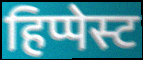
हिप्पेस्ट